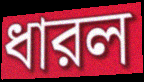
ধারল